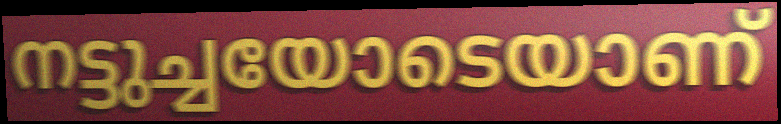
നട്ടുച്ചയോടെയാണ്